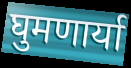
घुमणार्या